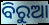
ବିରୁଆ